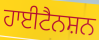
ਹਾਈਟੈਨਸ਼ਨ